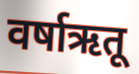
वर्षाऋतू